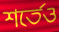
শর্তেও